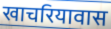
खाचरियावास